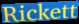
Rickett